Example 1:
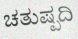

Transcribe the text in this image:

ಚತುಷ್ಪದಿ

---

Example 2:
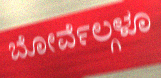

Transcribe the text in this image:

ಬೋರ್ವೆಲ್ಗಳೂ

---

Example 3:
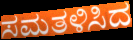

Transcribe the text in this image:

ಸಮತಳಿಸಿದ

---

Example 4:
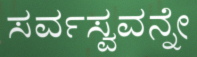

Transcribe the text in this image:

ಸರ್ವಸ್ವವನ್ನೇ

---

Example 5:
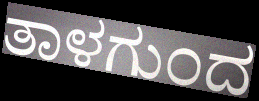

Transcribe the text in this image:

ತಾಳಗುಂದ